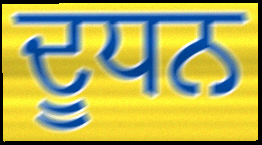
ਦੂਧਨ